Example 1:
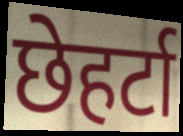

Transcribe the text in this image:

छेहर्टा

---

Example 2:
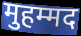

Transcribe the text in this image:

मुह़म्मद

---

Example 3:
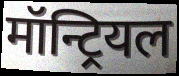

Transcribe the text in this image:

मॉन्ट्रियल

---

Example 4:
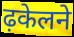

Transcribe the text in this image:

ढ़केलने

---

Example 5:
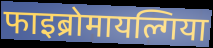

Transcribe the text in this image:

फाइब्रोमायल्गिया